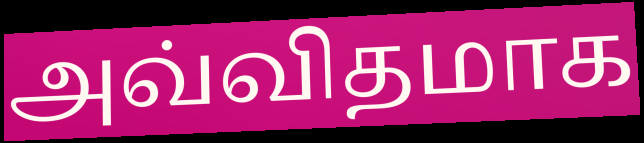
அவ்விதமாக